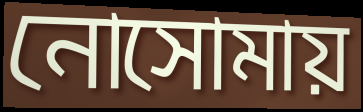
নোসোমায়